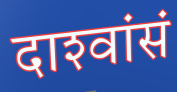
दाश्वांसं